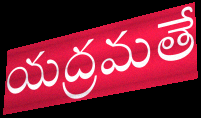
యద్రమతే